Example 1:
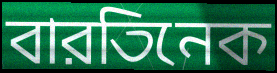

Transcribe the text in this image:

বারতিনেক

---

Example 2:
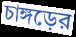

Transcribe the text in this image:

চাঙ্গড়ের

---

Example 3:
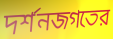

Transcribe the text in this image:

দর্শনজগতের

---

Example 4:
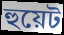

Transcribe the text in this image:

হুয়েট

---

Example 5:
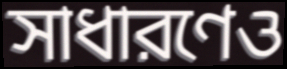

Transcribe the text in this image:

সাধারণেও